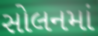
સોલનમાં